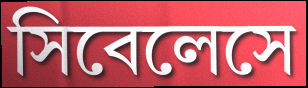
সিবেলেসে